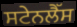
ਸਟੇਨਲੈੱਸ